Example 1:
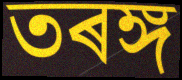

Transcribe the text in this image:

তৰঙ্গ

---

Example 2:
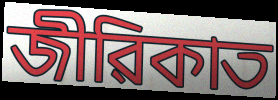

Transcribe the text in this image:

জীৱিকাত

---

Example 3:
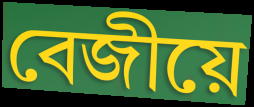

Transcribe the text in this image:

বেজীয়ে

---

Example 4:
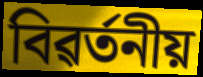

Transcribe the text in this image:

বিৱৰ্তনীয়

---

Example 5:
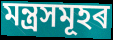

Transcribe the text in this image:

মন্ত্ৰসমূহৰ